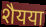
शैयया